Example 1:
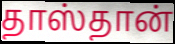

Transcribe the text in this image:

தாஸ்தான்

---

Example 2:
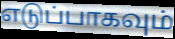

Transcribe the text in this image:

எடுப்பாகவும்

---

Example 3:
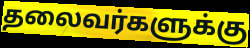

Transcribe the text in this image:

தலைவர்களுக்கு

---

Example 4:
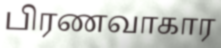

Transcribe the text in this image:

பிரணவாகார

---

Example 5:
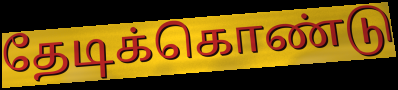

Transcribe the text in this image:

தேடிக்கொண்டு